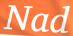
Nad